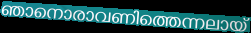
ഞാനൊരാവണിത്തെന്നലായ്